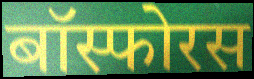
बॉस्फोरस